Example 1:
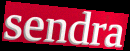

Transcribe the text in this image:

sendra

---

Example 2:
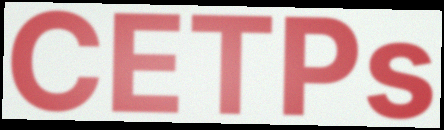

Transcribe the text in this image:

CETPs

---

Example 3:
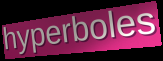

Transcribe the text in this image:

hyperboles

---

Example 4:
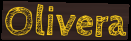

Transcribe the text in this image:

Olivera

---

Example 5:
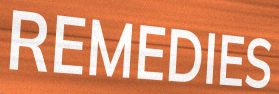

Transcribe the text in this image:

REMEDIES